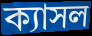
ক্যাসল